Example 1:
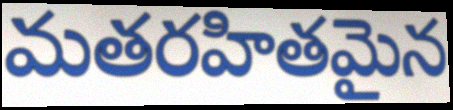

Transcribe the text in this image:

మతరహితమైన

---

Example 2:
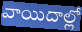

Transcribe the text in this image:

వాయిదాల్లో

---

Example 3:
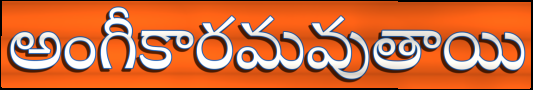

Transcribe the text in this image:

అంగీకారమవుతాయి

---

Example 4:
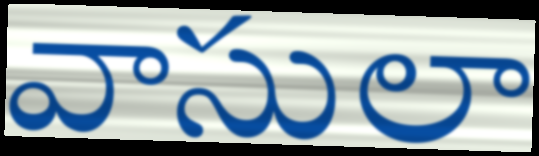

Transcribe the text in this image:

వాసులా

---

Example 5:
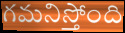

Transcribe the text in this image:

గమనిస్తోంది